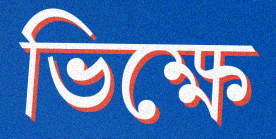
ভিক্ষে